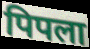
पिपला